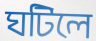
ঘটিলে